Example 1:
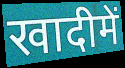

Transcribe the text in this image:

खादीमें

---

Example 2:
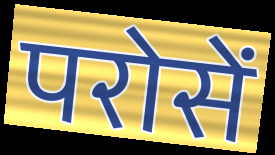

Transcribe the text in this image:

परोसें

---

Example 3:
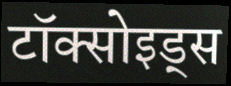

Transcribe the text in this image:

टॉक्सोइड्स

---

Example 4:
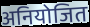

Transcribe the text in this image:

अनियोजित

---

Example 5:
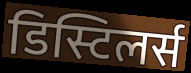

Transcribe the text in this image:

डिस्टिलर्स